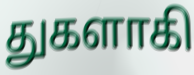
துகளாகி